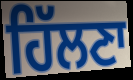
ਹਿੱਲਣਾ